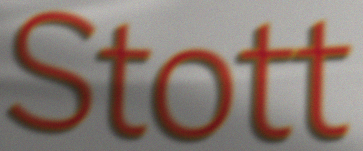
Stott